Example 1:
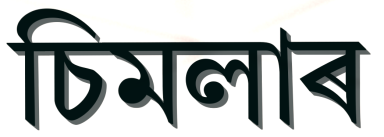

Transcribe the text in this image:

চিমলাৰ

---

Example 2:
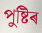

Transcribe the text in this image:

পুষ্টিৰ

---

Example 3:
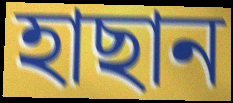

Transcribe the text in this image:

হাছান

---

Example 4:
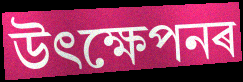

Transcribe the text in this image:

উৎক্ষেপনৰ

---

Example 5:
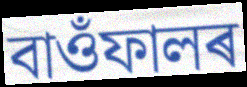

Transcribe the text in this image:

বাওঁফালৰ